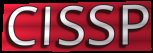
CISSP